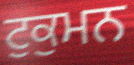
ਟੁਕੁਮਨ